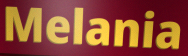
Melania